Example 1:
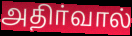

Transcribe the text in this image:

அதிர்வால்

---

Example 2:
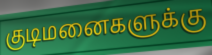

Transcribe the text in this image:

குடிமனைகளுக்கு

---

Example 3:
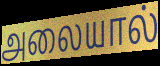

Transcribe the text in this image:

அலையால்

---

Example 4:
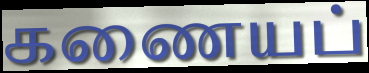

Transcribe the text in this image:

கணையப்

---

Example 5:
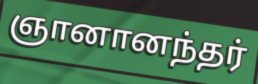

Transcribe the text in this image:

ஞானானந்தர்